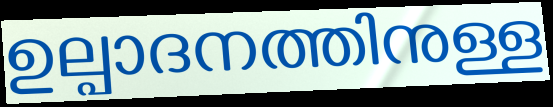
ഉല്പാദനത്തിനുള്ള